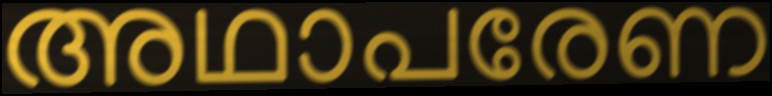
അഥാപരേണ